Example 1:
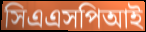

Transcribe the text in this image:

সিএএসপিআই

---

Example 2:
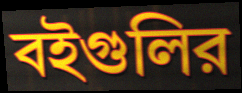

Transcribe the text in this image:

বইগুলির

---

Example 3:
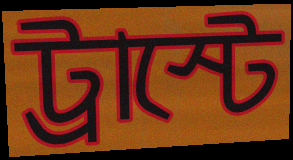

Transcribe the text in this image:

ট্রাস্টে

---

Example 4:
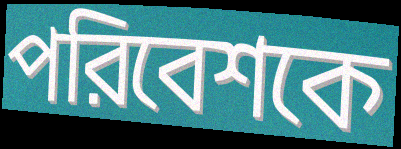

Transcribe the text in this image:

পরিবেশকে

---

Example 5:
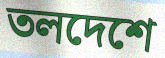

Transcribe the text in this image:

তলদেশে